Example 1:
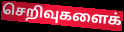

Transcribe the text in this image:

செறிவுகளைக்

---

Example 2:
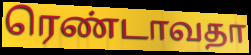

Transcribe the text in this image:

ரெண்டாவதா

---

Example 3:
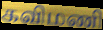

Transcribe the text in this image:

கவிமணி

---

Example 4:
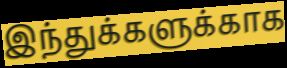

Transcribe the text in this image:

இந்துக்களுக்காக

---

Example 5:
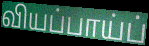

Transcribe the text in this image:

வியப்பாய்ப்